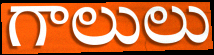
గాలులు